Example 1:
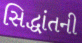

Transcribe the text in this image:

સિદ્ધાંતની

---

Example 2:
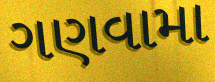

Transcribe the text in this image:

ગણવામા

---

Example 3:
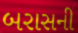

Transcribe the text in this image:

બરાસની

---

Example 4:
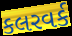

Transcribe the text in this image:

કલરવર્ક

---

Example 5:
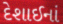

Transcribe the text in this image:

દેશાઈનાં